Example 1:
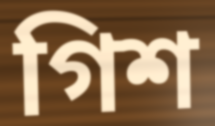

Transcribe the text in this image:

গিশ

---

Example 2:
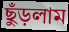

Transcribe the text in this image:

ছুঁড়লাম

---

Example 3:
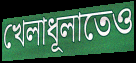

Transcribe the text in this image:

খেলাধূলাতেও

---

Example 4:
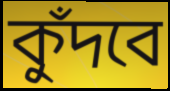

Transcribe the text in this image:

কুঁদবে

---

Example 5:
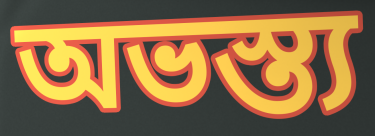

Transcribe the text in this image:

অভস্ত্য